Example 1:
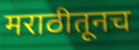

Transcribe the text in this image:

मराठीतूनच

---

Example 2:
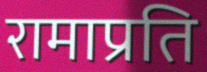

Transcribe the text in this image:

रामाप्रति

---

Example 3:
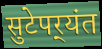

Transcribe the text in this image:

सुटेपर्यंत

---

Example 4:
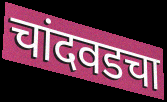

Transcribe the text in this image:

चांदवडचा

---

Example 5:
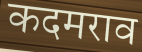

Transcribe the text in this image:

कदमराव